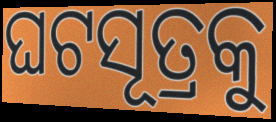
ଘଟସୂତ୍ରକୁ